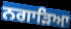
ਨਗਾੜਿਆ